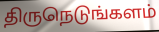
திருநெடுங்களம்